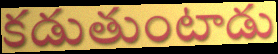
కడుతుంటాడు